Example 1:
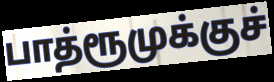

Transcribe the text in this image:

பாத்ரூமுக்குச்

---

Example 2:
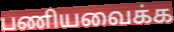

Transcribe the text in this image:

பணியவைக்க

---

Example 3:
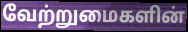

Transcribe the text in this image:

வேற்றுமைகளின்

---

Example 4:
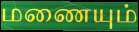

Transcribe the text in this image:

மணையும்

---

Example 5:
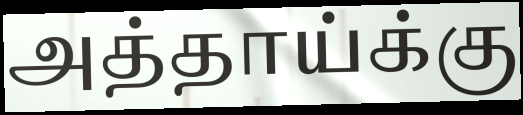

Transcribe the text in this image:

அத்தாய்க்கு